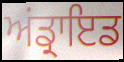
ਅਂਡ੍ਰਾਇਡ